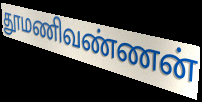
தூமணிவண்ணன்